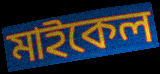
মাইকেল